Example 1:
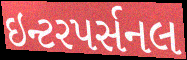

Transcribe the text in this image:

ઇન્ટરપર્સનલ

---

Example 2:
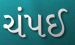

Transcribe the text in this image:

ચંપઈ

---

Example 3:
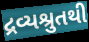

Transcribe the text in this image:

દ્રવ્યશ્રુતથી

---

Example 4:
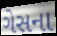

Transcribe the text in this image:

ગેસના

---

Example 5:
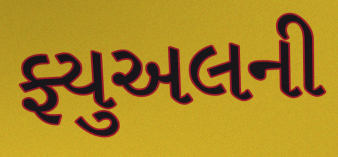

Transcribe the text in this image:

ફ્યુઅલની